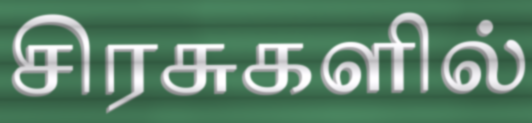
சிரசுகளில்